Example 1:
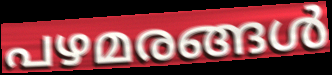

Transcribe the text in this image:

പഴമരങ്ങൾ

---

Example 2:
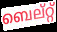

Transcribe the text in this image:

ബെല്റ്റ്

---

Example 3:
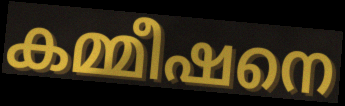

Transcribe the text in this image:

കമ്മീഷനെ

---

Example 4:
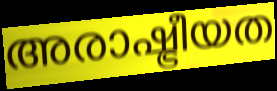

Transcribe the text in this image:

അരാഷ്ട്രീയത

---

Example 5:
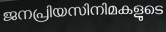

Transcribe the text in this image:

ജനപ്രിയസിനിമകളുടെ